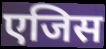
एजिस